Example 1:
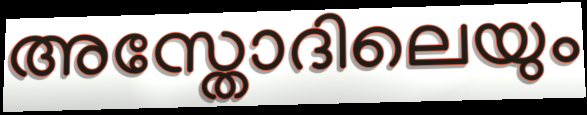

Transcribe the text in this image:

അസ്തോദിലെയും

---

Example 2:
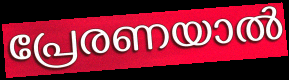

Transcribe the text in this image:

പ്രേരണയാൽ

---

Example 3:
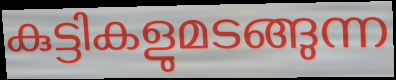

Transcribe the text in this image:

കുട്ടികളുമടങ്ങുന്ന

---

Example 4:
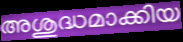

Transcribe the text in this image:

അശുദ്ധമാക്കിയ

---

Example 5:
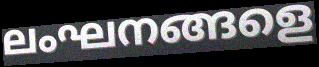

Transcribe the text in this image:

ലംഘനങ്ങളെ